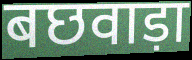
बछवाड़ा